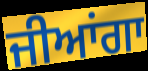
ਜੀਆਂਗਾ